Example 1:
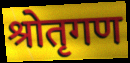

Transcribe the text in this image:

श्रोतृगण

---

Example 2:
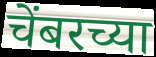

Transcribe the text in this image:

चेंबरच्या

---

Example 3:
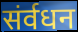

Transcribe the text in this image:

संर्वधन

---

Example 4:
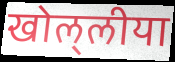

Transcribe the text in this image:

खोल्लीया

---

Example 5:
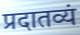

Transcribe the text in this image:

प्रदातव्यं